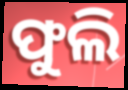
ଫୁଲି